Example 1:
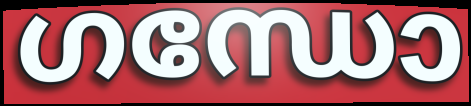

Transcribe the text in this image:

ഗന്ധോ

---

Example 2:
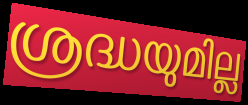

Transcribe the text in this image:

ശ്രദ്ധയുമില്ല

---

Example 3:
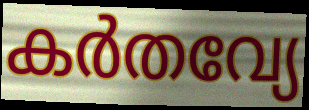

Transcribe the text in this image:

കർതവ്യേ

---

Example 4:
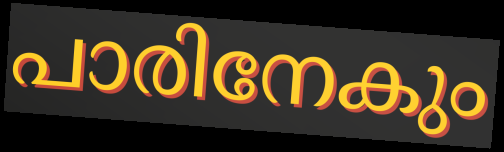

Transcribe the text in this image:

പാരിനേകും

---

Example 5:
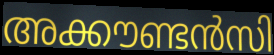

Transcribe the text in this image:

അക്കൗണ്ടൻസി